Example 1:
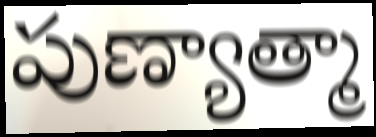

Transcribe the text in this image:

పుణ్యాత్మా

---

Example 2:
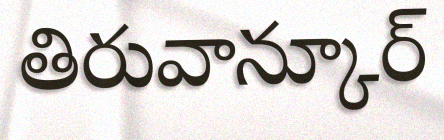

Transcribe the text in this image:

తిరువాన్కూర్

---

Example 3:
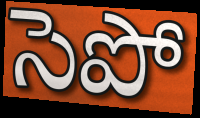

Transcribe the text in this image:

సెపో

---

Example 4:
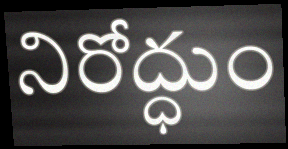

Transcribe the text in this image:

నిరోద్ధుం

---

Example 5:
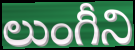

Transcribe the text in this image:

లుంగీని